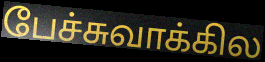
பேச்சுவாக்கில